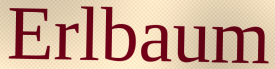
Erlbaum